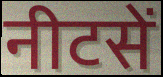
नीटसें